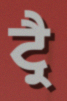
ਟ੍ਰੈ